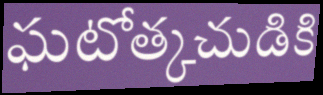
ఘటోత్కచుడికి